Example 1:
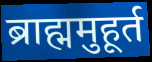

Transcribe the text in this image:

ब्राह्ममुहूर्त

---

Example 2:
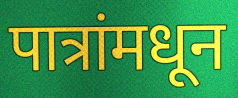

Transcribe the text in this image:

पात्रांमधून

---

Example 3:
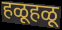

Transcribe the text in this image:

हळूहळू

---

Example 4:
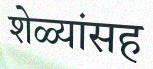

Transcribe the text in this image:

शेळ्यांसह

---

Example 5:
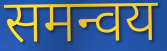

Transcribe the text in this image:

समन्वय